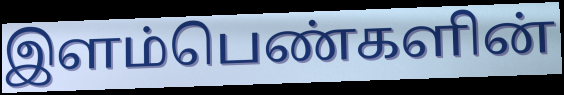
இளம்பெண்களின்